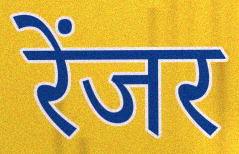
रेंजर